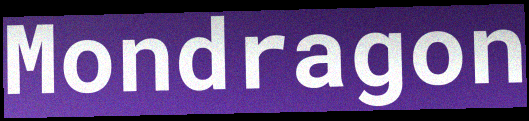
Mondragon